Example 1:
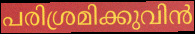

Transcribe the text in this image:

പരിശ്രമിക്കുവിൻ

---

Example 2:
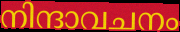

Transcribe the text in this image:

നിന്ദാവചനം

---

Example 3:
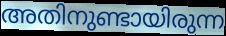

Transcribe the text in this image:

അതിനുണ്ടായിരുന്ന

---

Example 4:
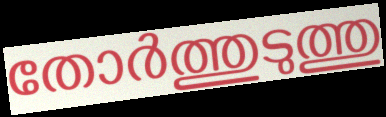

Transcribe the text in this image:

തോർത്തുടുത്തു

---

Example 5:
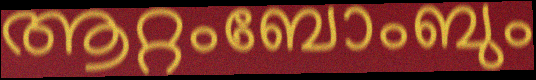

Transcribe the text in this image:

ആറ്റംബോംബും